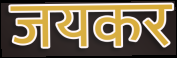
जयकर